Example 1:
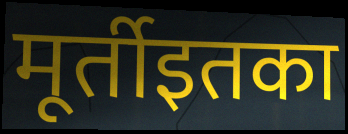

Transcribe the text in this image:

मूर्तीइतका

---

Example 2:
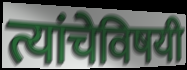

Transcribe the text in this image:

त्यांचेविषयी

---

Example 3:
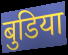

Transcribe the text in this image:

बुडिया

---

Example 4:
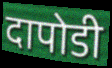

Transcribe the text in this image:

दापोडी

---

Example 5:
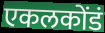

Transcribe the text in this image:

एकलकोंडं